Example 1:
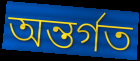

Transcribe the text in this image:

অন্তর্গত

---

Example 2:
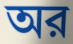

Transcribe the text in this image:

অর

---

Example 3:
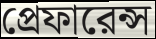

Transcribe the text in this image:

প্রেফারেন্স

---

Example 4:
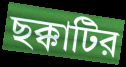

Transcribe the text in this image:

ছক্কাটির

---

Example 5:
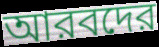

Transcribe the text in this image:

আরবদের